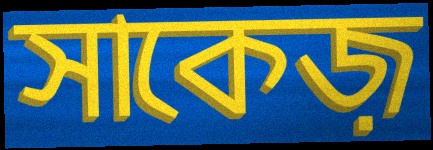
সাকেজ়